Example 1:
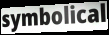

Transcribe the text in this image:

symbolical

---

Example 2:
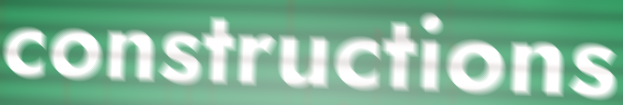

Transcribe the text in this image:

constructions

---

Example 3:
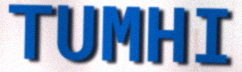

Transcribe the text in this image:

TUMHI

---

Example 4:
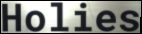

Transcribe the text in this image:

Holies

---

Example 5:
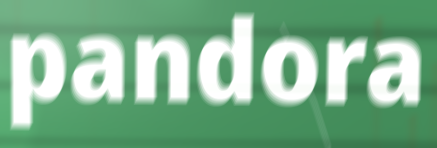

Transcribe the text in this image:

pandora